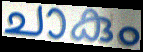
ചാകും